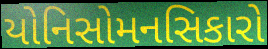
યોનિસોમનસિકારો